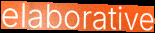
elaborative